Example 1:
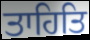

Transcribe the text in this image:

ਤਾਹਿਤਿ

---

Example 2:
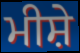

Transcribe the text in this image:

ਮੀਸ਼ੇ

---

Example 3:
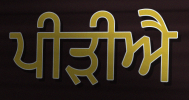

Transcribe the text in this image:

ਪੀੜੀਐ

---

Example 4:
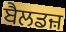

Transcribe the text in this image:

ਬੈਲਡਜ਼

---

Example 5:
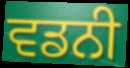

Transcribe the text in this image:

ਵਡਨੀ